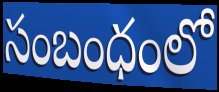
సంబంధంలో